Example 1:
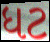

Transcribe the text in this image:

ધટ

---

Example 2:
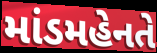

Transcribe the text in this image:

માંડમહેનતે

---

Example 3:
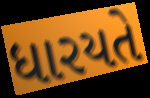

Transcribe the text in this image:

ધારયતે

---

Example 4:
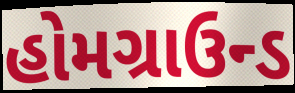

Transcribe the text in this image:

હોમગ્રાઉન્ડ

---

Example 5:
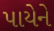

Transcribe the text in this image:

પાયેને